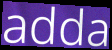
adda